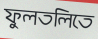
ফুলতলিতে